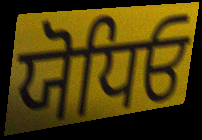
ਯੋਧਿਓ